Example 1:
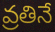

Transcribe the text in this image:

వ్రతినే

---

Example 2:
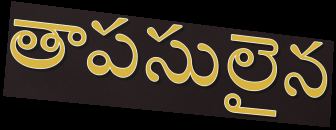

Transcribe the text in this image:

తాపసులైన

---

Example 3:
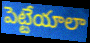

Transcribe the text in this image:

పెట్టేయాలా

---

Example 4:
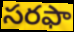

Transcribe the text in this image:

సరఫా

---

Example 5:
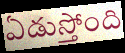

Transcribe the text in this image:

ఏడుస్తోంది